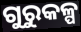
ଗୁରୁକଳ୍ପ